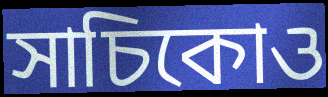
সাচিকোও